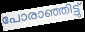
പോരാഞ്ഞിട്ടു്